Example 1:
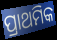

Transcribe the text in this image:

ପ୍ରାଥମିକ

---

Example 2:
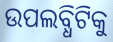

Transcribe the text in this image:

ଉପଲବ୍ଧିଟିକୁ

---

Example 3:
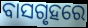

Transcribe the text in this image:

ବାସଗୃହରେ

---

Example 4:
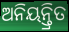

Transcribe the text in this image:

ଅନିୟନ୍ତ୍ରିତ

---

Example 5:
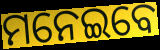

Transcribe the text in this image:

ମନେଇବେ